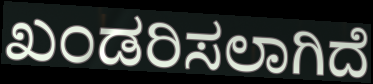
ಖಂಡರಿಸಲಾಗಿದೆ